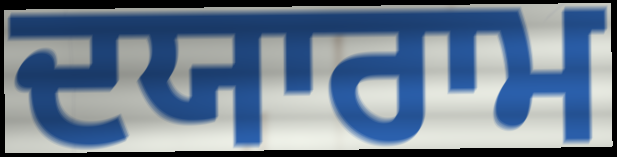
ਦਯਾਰਾਮ